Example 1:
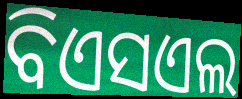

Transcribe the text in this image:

ବିଏସଏଲ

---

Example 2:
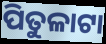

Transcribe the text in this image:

ପିତୁଳାଟା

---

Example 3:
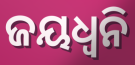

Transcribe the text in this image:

ଜୟଧ୍ଵନି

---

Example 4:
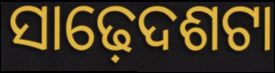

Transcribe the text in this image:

ସାଢ଼େଦଶଟା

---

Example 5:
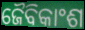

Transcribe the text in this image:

ଜୈବିକାଂଶ